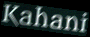
Kahani